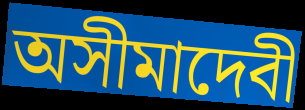
অসীমাদেবী